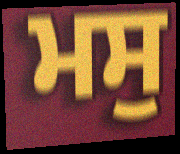
ਮਸੁ